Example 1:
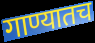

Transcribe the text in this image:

गाण्यातच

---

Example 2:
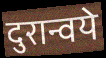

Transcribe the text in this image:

दुरान्वये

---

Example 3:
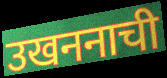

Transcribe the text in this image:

उखननाची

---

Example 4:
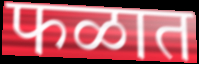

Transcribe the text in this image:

फळात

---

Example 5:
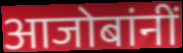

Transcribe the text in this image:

आजोबांनीं